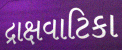
દ્રાક્ષવાટિકા